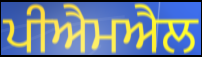
ਪੀਐਮਐਲ